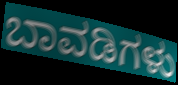
ಬಾವಡಿಗಳು